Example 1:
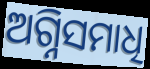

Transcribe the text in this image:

ଅଗ୍ନିସମାଧି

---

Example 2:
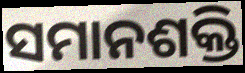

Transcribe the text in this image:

ସମାନଶକ୍ତି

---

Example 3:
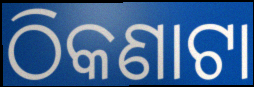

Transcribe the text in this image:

ଠିକଣାଟା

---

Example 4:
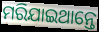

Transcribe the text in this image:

ମରିଯାଇଥାନ୍ତେ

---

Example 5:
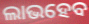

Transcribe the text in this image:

ଲାଭହେବ